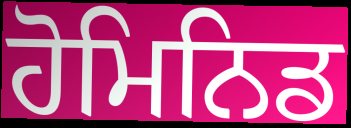
ਹੋਮਿਨਿਡ